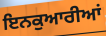
ਇਨਕੁਆਰੀਆਂ